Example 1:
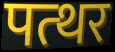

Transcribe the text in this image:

पत्‍थर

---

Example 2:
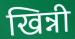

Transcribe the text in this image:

खिन्नी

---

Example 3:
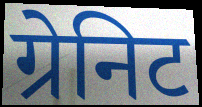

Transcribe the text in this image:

ग्रेनिट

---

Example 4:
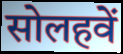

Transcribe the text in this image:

सोलहवें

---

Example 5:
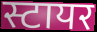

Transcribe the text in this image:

स्टायर